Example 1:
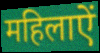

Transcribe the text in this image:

महिलाऐं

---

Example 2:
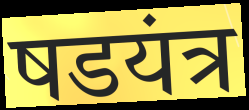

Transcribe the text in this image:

षडयंत्र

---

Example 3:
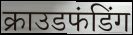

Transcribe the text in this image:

क्राउडफंडिंग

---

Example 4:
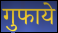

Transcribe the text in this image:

गुफाये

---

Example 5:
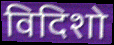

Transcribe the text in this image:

विदिशो